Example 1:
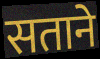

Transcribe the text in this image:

सताने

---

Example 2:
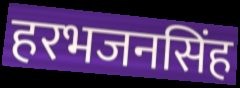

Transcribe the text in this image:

हरभजनसिंह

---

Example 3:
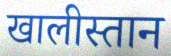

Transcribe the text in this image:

खालीस्तान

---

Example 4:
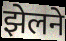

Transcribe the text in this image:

झेलने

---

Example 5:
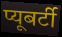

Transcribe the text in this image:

प्यूबर्टी